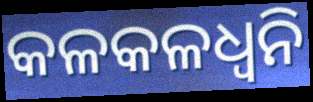
କଳକଳଧ୍ଵନି